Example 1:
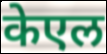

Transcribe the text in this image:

केएल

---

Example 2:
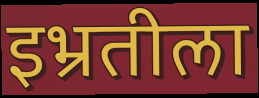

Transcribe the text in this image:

इभ्रतीला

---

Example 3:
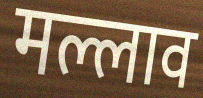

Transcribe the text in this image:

मल्लाव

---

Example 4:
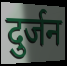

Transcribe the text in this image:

दुर्जन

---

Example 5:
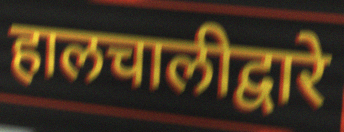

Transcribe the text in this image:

हालचालीद्वारे